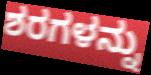
ಶರಗಳನ್ನು